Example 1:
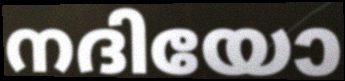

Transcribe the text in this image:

നദിയോ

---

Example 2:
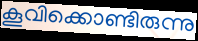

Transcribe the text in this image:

കൂവിക്കൊണ്ടിരുന്നു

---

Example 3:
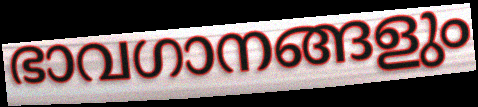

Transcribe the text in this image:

ഭാവഗാനങ്ങളും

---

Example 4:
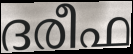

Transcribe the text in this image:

ദരീഫ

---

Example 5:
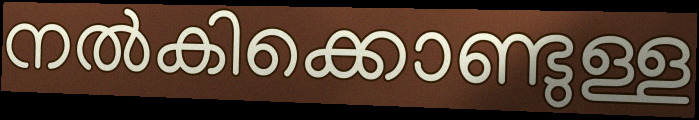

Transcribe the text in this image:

നൽകിക്കൊണ്ടുള്ള